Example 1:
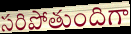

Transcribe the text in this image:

సరిపోతుందిగా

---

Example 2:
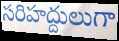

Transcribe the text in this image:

సరిహద్దులుగా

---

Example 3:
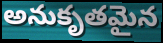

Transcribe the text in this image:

అనుకృతమైన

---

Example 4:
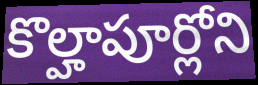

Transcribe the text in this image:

కొల్హాపూర్లోని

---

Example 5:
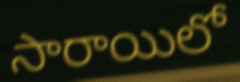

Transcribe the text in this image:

సారాయిలో